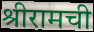
श्रीरामची